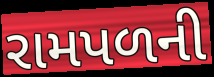
રામપળની